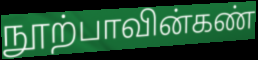
நூற்பாவின்கண்